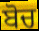
ਬੋਚ